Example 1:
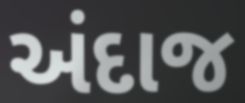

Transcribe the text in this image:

અંદાજ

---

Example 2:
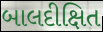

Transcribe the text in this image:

બાલદીક્ષિત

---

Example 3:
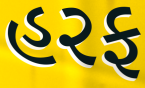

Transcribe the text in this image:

હરફ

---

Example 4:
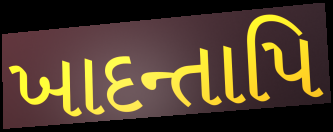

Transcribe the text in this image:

ખાદન્તાપિ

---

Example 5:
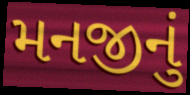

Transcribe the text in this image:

મનજીનું